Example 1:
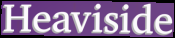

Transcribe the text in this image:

Heaviside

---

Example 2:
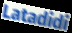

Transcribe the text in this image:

Latadidi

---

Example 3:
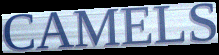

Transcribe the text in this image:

CAMELS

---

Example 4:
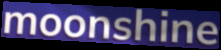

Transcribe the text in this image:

moonshine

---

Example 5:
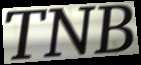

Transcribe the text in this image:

TNB